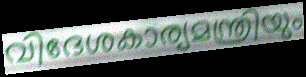
വിദേശകാര്യമന്ത്രിയും